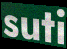
suti